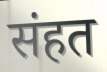
संहत